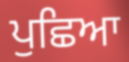
ਪੁਛਿਆ